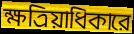
ক্ষত্রিয়াধিকারে